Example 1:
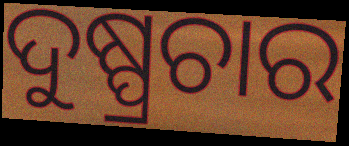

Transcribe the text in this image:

ଦୁଷ୍ପ୍ରଚାର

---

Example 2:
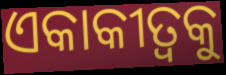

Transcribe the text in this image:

ଏକାକୀତ୍ଵକୁ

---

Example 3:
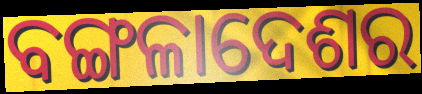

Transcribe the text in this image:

ବଙ୍ଗଳାଦେଶର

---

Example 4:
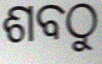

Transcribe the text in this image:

ଶବଠୁ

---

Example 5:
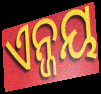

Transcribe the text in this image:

ଏନ୍ଜୟ